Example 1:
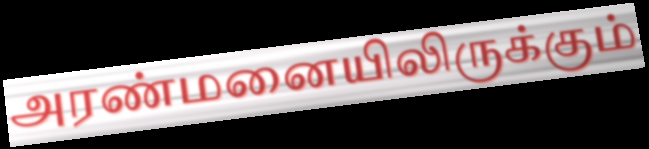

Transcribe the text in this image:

அரண்மனையிலிருக்கும்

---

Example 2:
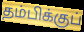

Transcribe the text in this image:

தம்பிக்குப்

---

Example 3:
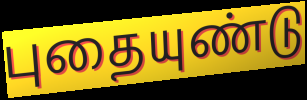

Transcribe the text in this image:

புதையுண்டு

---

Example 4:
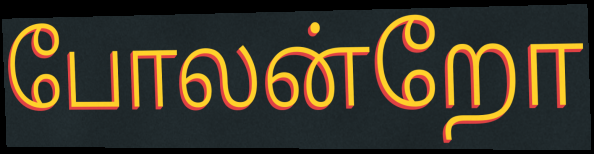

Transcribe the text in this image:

போலன்றோ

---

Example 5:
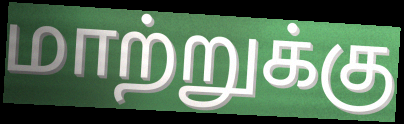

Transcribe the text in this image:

மாற்றுக்கு